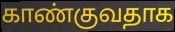
காண்குவதாக